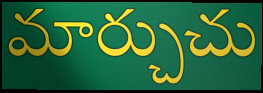
మార్చుచు